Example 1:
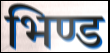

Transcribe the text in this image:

भिण्‍ड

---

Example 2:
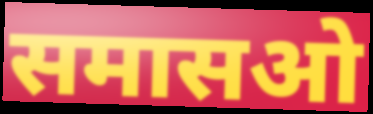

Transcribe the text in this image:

समासओ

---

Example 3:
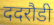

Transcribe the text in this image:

ददरौडी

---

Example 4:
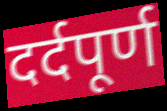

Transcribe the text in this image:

दर्दपूर्ण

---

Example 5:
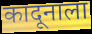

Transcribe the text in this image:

कादूनाला